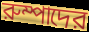
রুম্পাদের